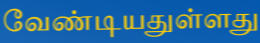
வேண்டியதுள்ளது